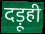
दड़ूही